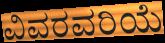
ವಿವರವರಿಯೆ